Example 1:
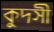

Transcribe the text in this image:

কুদসী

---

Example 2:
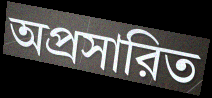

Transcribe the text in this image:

অপ্রসারিত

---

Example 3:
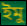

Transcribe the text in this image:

ইমু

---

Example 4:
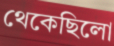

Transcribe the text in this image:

থেকেছিলো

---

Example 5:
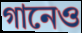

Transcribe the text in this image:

গানেও